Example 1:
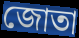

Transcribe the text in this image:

জোতা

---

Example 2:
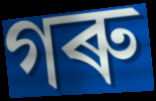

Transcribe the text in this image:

গৰু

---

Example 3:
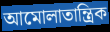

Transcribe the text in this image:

আমোলাতান্ত্ৰিক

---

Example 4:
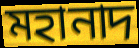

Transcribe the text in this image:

মহানাদ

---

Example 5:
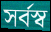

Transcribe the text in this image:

সৰ্বস্ব